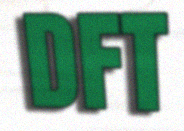
DFT